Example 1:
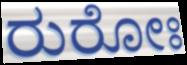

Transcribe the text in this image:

ರುರೋಃ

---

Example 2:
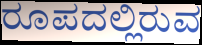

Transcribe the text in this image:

ರೂಪದಲ್ಲಿರುವ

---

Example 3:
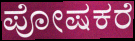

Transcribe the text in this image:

ಪೋಷಕರೆ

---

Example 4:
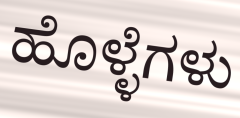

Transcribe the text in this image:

ಹೊಳ್ಳೆಗಳು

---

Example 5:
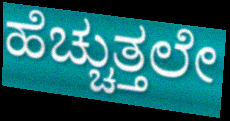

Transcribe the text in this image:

ಹೆಚ್ಚುತ್ತಲೇ